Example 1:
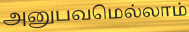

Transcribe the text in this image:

அனுபவமெல்லாம்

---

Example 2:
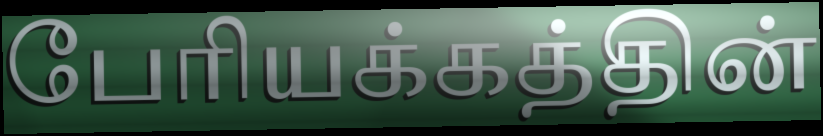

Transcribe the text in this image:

பேரியக்கத்தின்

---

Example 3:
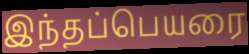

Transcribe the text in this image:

இந்தப்பெயரை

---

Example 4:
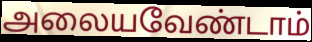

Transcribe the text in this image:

அலையவேண்டாம்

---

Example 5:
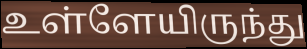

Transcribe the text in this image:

உள்ளேயிருந்து